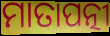
ମାତାପତ୍ନୀ